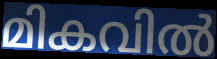
മികവിൽ